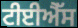
ਟੀਈਐੱਸ